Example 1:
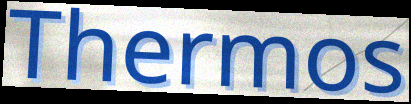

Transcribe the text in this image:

Thermos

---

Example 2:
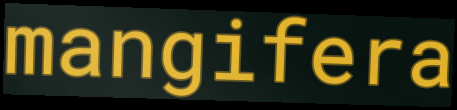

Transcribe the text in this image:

mangifera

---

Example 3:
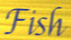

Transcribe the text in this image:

Fish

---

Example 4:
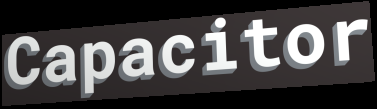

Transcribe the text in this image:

Capacitor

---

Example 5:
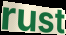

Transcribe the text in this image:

rust